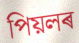
পিয়লৰ